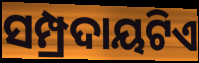
ସମ୍ପ୍ରଦାୟଟିଏ